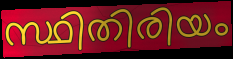
സ്ഥിതിരിയം